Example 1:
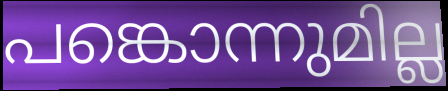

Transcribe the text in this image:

പങ്കൊന്നുമില്ല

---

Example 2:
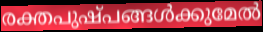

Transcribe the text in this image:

രക്തപുഷ്പങ്ങൾക്കുമേൽ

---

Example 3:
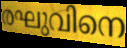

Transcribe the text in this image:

രഘുവിനെ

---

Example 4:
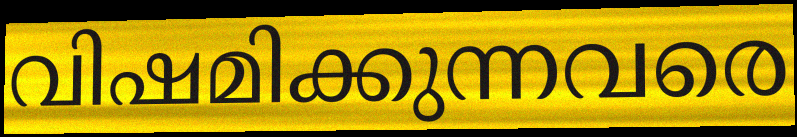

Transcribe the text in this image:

വിഷമിക്കുന്നവരെ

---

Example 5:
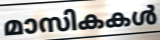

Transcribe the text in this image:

മാസികകൾ